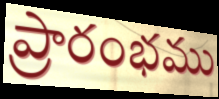
ప్రారంభము